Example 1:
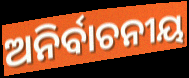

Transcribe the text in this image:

ଅନିର୍ବାଚନୀୟ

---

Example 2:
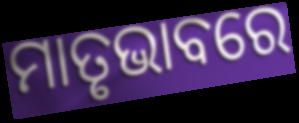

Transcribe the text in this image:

ମାତୃଭାବରେ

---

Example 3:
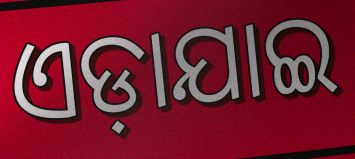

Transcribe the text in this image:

ଏଡ଼ାଯାଇ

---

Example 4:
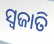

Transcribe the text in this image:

ସ୍ୱଜାତି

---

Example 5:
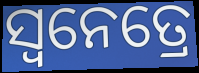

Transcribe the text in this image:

ସ୍ୱନେତ୍ରେ